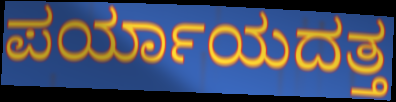
ಪರ್ಯಾಯದತ್ತ